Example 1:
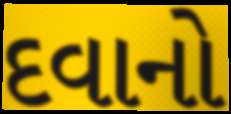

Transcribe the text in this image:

દવાનો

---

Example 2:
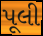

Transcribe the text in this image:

પૂલી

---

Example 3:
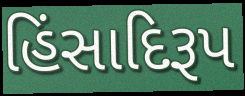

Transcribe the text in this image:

હિંસાદિરૂપ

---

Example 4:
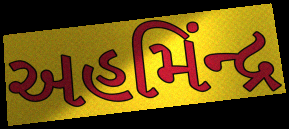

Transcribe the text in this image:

અહમિંન્દ્ર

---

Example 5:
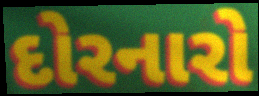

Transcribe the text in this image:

દોરનારો